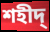
শহীদ্